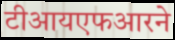
टीआयएफआरने